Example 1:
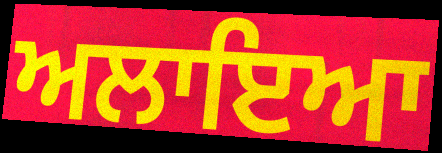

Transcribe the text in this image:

ਅਲਾਇਆ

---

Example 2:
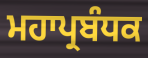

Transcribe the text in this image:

ਮਹਾਪ੍ਰਬੰਧਕ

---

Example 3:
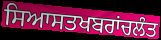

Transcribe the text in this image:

ਸਿਆਸਤਖਬਰਾਂਚਲੰਤ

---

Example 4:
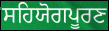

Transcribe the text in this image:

ਸਹਿਯੋਗਪੂਰਣ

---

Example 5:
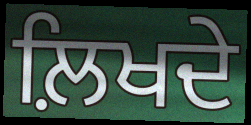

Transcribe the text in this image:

ਲ਼ਿਖਦੇ